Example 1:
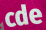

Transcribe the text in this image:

cde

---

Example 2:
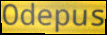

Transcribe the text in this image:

Odepus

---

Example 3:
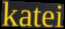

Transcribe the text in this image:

katei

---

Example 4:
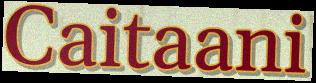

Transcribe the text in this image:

Caitaani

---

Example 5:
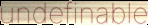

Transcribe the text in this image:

undefinable